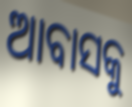
ଆବାସକୁ